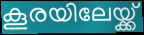
കൂരയിലേയ്ക്ക്